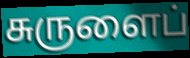
சுருளைப்